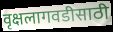
वृक्षलागवडीसाठी